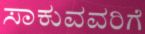
ಸಾಕುವವರಿಗೆ